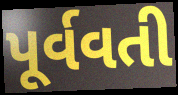
પૂર્વવતી